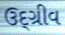
ઉદ્ગ્રીવ